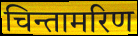
चिन्तामरिण